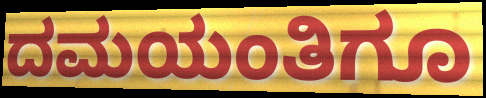
ದಮಯಂತಿಗೂ